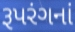
રૂપરંગનાં